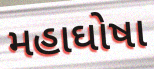
મહાઘોષા